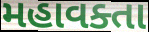
મહાવક્તા